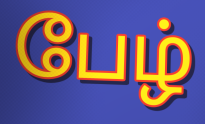
பேழ்